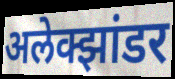
अलेक्झांडर